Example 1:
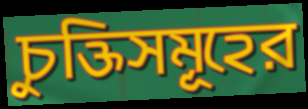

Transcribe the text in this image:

চুক্তিসমূহের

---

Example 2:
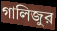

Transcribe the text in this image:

গালিজুর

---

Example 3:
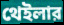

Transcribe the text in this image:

থেইলার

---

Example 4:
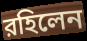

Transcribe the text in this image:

রহিলেন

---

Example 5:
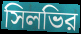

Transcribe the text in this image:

সিলভির